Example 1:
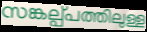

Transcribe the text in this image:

സങ്കല്പ്പത്തിലുള്ള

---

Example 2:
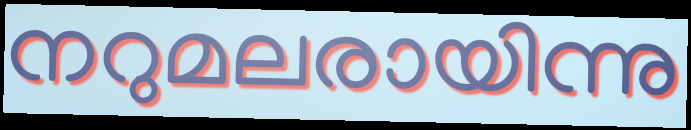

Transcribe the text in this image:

നറുമലരായിന്നു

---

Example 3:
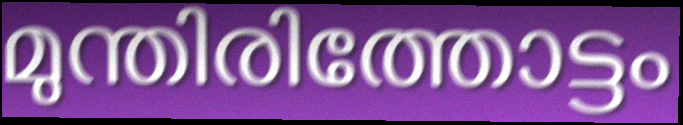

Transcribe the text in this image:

മുന്തിരിത്തോട്ടം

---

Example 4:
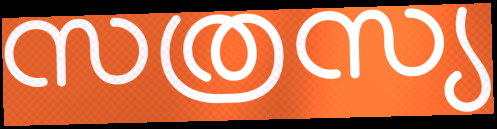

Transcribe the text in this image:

സത്രസ്യ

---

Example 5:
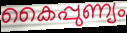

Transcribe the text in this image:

കൈപ്പുണ്യം